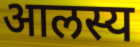
आलस्य